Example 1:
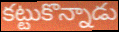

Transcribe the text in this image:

కట్టుకొన్నాడు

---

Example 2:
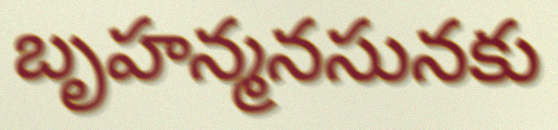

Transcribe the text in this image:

బృహన్మనసునకు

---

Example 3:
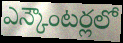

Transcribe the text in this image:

ఎన్కౌంటర్లలో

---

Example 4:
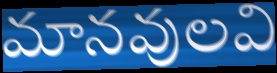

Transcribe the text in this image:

మానవులవి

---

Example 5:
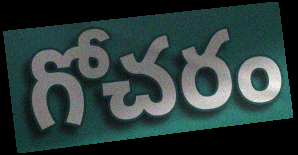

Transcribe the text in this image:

గోచరం